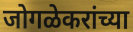
जोगळेकरांच्या